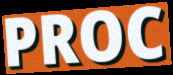
PROC